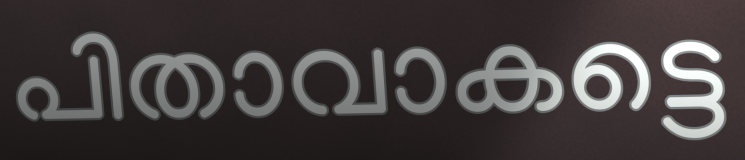
പിതാവാകട്ടെ